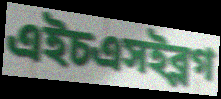
এইচএসইব্লগ